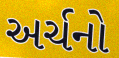
અર્ચનો